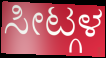
ಸೀಟ್ಗಳ